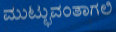
ಮುಟ್ಟುವಂತಾಗಲಿ